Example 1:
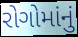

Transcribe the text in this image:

રોગોમાંનું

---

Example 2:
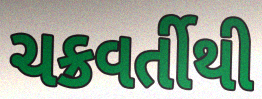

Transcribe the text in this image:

ચક્રવર્તીથી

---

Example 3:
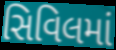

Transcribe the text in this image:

સિવિલમાં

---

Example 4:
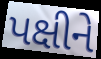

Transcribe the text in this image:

પક્ષીને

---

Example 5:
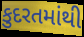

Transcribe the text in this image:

કુદરતમાંથી